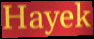
Hayek